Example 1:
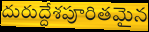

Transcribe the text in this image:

దురుద్దేశపూరితమైన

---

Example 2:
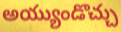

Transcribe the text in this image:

అయ్యుండొచ్చు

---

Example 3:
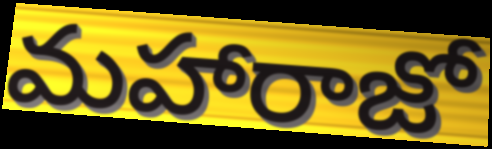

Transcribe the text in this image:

మహారాజో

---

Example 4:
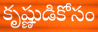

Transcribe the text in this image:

కృష్ణుడికోసం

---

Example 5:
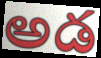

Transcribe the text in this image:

అడ